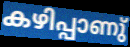
കഴിപ്പാണു്